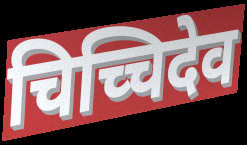
चिच्चिदेव